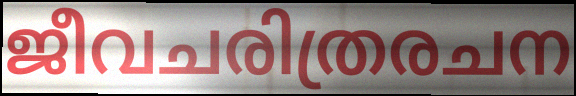
ജീവചരിത്രരചന